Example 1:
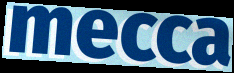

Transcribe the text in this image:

mecca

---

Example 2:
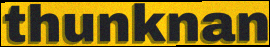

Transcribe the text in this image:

thunknan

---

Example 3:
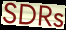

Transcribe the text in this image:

SDRs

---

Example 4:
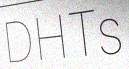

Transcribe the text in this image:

DHTs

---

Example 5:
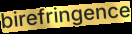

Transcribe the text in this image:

birefringence